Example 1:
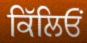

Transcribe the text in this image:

ਕਿੱਲਿਓਂ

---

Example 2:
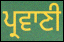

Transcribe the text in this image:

ਪ੍ਰਵਾਣੀ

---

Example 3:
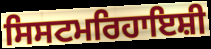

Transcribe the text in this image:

ਸਿਸਟਮਰਿਹਾਇਸ਼ੀ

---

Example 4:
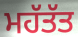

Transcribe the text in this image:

ਮਹੱਤੱਤ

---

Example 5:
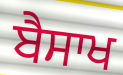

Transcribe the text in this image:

ਬੈਸਾਖ